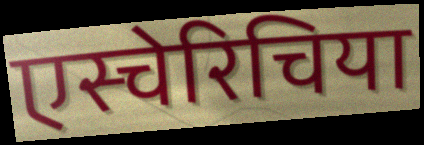
एस्चेरिचिया